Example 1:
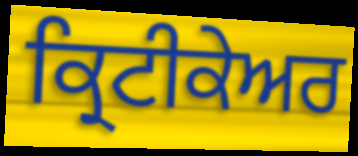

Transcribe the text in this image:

ਕ੍ਰਿਟੀਕੇਅਰ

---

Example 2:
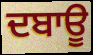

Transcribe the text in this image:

ਦਬਾਊ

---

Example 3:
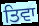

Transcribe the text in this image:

ਤਿਵਾ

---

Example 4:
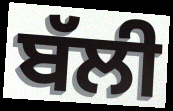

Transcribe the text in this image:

ਬੱਲੀ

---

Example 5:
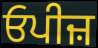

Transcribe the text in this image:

ਓਪੀਜ਼